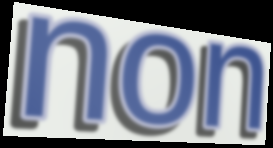
non